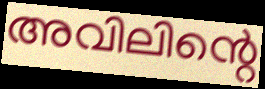
അവിലിന്റെ